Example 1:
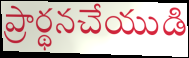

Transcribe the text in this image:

ప్రార్థనచేయుడి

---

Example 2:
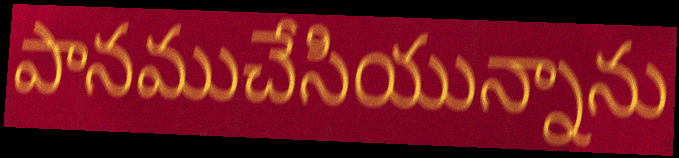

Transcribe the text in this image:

పానముచేసియున్నాను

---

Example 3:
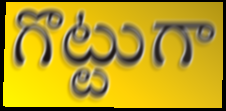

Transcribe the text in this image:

గొట్టుగా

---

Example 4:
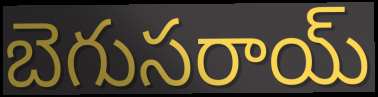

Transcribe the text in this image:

బెగుసరాయ్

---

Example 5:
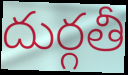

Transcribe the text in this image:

దుర్గతీ